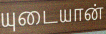
யுடையான்